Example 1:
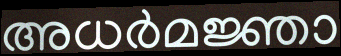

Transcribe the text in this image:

അധർമജ്ഞാ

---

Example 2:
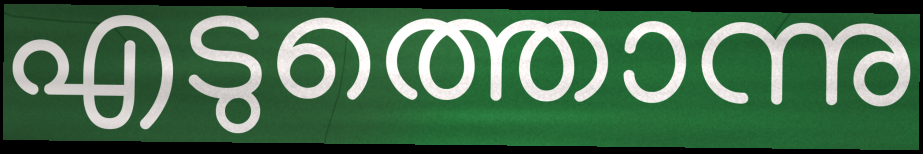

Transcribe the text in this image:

എടുത്തൊന്നു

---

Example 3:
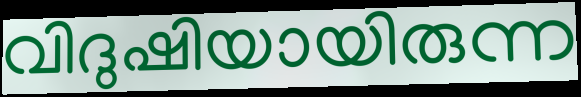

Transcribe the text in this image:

വിദുഷിയായിരുന്ന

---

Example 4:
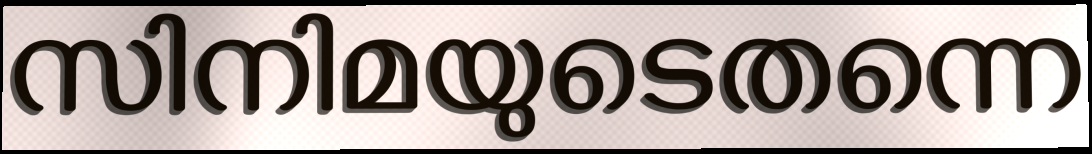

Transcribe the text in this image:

സിനിമയുടെതന്നെ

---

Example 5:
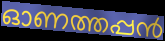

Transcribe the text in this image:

ഓണത്തപ്പൻ